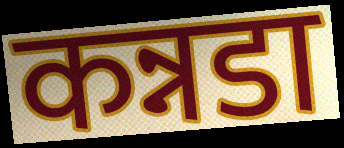
कन्नडा